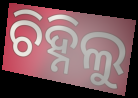
ଚିହ୍ନିଲୁ